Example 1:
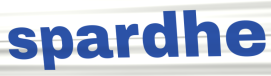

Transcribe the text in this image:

spardhe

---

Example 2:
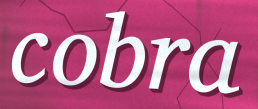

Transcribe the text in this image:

cobra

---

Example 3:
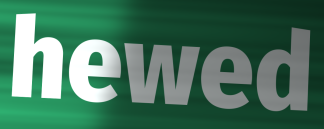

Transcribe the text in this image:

hewed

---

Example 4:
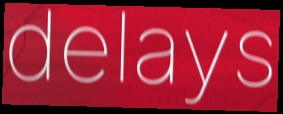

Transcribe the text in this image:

delays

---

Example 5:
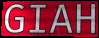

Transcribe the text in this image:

GIAH